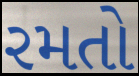
રમતો